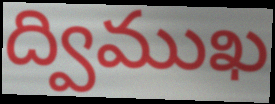
ద్విముఖ